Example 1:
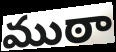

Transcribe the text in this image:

ముఠా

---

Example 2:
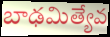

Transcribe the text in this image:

బాఢమిత్యేవ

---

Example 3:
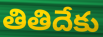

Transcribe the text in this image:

తితిదేకు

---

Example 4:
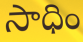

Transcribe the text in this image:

సాధిం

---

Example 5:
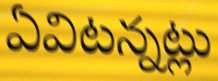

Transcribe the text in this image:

ఏవిటన్నట్లు